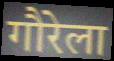
गौरेला